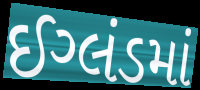
ઈગ્લંડમાં